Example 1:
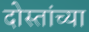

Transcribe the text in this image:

दोस्तांच्या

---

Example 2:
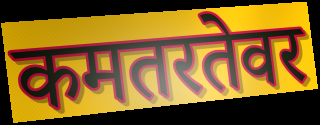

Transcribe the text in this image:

कमतरतेवर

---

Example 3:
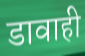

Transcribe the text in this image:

डावाही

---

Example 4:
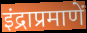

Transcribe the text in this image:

इंद्राप्रमाणें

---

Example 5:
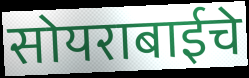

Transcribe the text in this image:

सोयराबाईचे